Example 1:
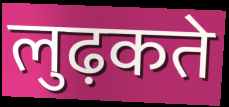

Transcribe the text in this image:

लुढ़कते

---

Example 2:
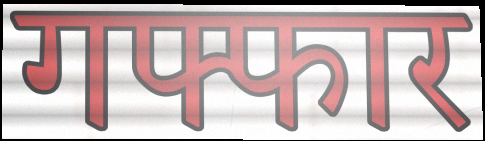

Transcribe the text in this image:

गफ्फार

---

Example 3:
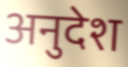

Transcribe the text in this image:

अनुदेश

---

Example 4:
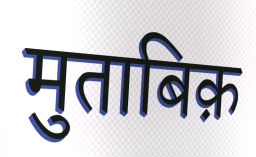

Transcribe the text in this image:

मुताबिक़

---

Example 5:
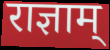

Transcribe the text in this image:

राज्ञाम्